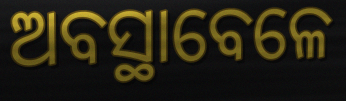
ଅବସ୍ଥାବେଳେ